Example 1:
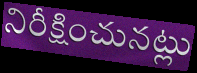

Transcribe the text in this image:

నిరీక్షించునట్లు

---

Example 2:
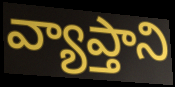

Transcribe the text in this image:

వ్యాప్తాని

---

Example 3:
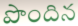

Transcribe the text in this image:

పొందిన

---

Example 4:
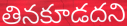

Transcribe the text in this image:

తినకూడదని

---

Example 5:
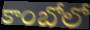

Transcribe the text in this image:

కాంబోలో